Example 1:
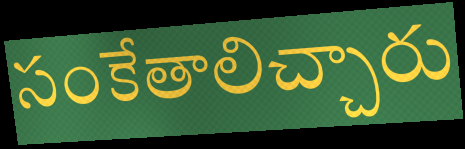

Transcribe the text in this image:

సంకేతాలిచ్చారు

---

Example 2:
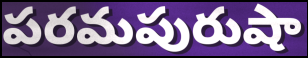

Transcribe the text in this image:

పరమపురుషా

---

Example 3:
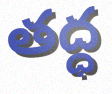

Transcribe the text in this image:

తద్ధ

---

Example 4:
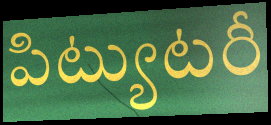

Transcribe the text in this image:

పిట్యుటరీ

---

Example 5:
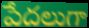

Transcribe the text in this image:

పేదలుగా